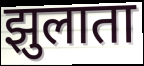
झुलाता